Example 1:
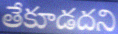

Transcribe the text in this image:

తేకూడదని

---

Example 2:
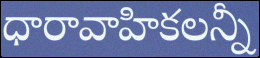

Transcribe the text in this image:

ధారావాహికలన్నీ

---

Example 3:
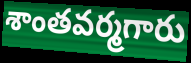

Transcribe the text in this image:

శాంతవర్మగారు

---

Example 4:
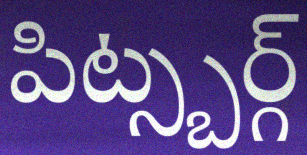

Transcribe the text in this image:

పిట్స్బర్గ్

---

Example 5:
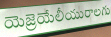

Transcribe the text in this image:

యెజ్రెయేలీయురాలగు